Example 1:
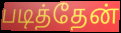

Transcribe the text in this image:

படித்தேன்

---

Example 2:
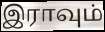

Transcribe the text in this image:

இராவும்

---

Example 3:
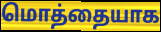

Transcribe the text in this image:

மொத்தையாக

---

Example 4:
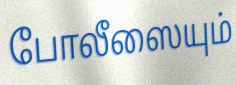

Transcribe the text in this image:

போலீஸையும்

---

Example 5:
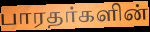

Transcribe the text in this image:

பாரதர்களின்